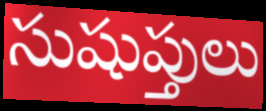
సుషుప్తులు